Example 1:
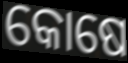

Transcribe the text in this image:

କୋଷେ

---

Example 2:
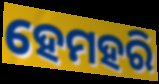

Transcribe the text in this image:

ହେମହରି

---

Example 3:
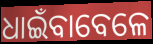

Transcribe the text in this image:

ଧାଇଁବାବେଳେ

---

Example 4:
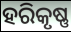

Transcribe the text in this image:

ହରିକୃଷ୍ଣ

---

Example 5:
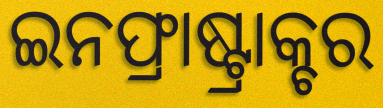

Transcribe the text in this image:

ଇନଫ୍ରାଷ୍ଟ୍ରାକ୍ଚର